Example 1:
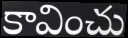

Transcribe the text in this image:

కావించు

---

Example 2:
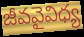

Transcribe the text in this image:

జీవవైవిధ్య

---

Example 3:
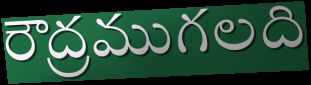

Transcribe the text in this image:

రౌద్రముగలది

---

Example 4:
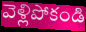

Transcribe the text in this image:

వెళ్లిపోకండి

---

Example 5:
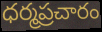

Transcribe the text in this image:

ధర్మప్రచారం